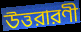
উত্তরারণী